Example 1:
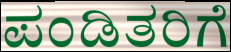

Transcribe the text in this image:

ಪಂಡಿತರಿಗೆ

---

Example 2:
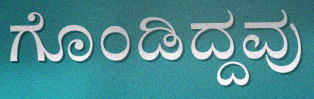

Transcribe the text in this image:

ಗೊಂಡಿದ್ದವು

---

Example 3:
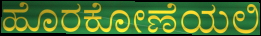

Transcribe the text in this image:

ಹೊರಕೋಣೆಯಲಿ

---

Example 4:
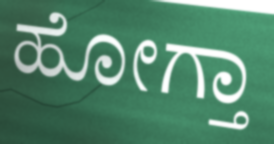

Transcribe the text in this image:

ಹೋಗ್ತಾ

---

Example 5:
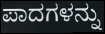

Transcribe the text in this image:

ಪಾದಗಳನ್ನು